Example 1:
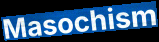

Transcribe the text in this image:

Masochism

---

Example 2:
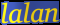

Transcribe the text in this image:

lalan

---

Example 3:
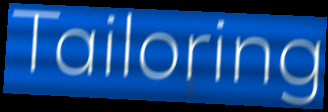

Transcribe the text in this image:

Tailoring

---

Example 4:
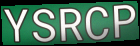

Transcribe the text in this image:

YSRCP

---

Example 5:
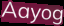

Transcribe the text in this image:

Aayog